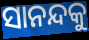
ସାନନ୍ଦକୁ